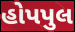
હોપપુલ